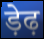
ड़ेढ़